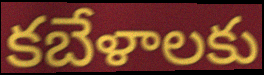
కబేళాలకు